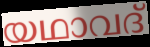
യഥാവദ്